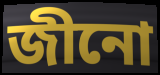
জীনো